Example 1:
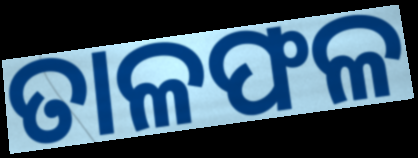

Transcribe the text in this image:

ତାଳଫଳ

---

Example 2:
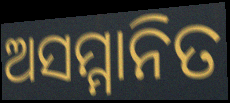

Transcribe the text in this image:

ଅସମ୍ମାନିତ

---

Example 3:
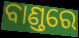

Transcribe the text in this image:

ବାଣ୍ଡରେ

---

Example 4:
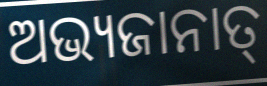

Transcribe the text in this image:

ଅଭ୍ୟଜାନାତ୍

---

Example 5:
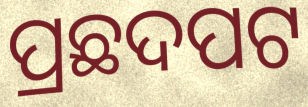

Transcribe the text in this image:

ପ୍ରଛଦପଟ